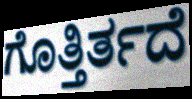
ಗೊತ್ತಿರ್ತದೆ